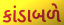
કાંડાબળે